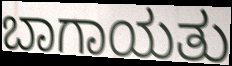
ಬಾಗಾಯತು